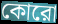
কোরো